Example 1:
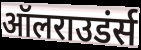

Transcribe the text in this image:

ऑलराउडंर्स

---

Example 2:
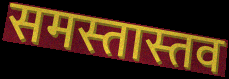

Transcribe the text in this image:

समस्तास्तव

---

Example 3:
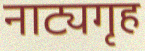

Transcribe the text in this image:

नाट्यगृह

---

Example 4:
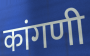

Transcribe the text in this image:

कांगणी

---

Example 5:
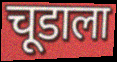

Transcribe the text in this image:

चूडाला